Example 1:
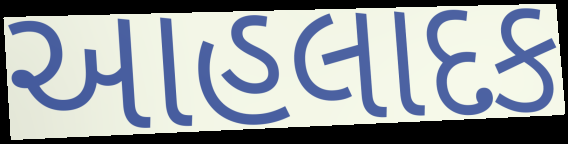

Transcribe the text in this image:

આહલાદક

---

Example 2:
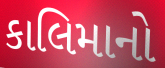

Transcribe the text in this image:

કાલિમાનો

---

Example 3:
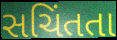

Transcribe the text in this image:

સચિંતતા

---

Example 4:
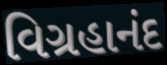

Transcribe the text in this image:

વિગ્રહાનંદ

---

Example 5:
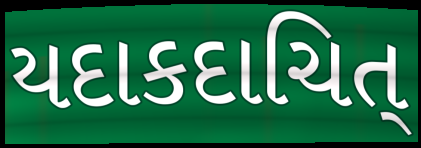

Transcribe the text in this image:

યદાકદાચિત્